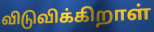
விடுவிக்கிறாள்